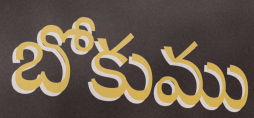
బోకుము